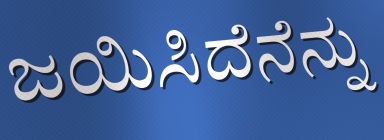
ಜಯಿಸಿದೆನೆನ್ನು